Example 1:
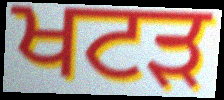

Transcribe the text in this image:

ਖਟੜ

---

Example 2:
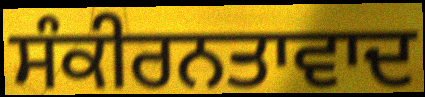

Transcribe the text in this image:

ਸੰਕੀਰਨਤਾਵਾਦ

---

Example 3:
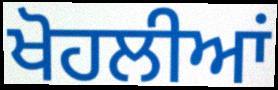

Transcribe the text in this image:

ਖੋਹਲੀਆਂ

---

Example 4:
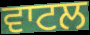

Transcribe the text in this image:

ਵਾਟਲ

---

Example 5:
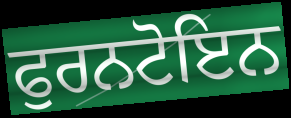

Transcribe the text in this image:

ਫੁਰਨਟੋਇਨ